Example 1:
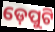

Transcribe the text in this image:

ଡ଼େପୁଟି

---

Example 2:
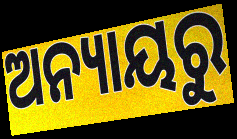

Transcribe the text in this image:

ଅନ୍ୟାୟରୁ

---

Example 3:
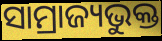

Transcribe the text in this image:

ସାମ୍ରାଜ୍ୟଭୁକ୍ତ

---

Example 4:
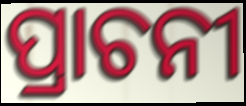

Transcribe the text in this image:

ପ୍ରାଚନୀ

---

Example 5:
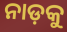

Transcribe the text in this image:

ନାଡ଼କୁ